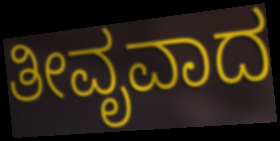
ತೀವೃವಾದ